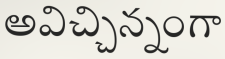
అవిచ్చిన్నంగా